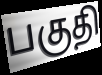
பகுதி